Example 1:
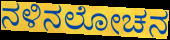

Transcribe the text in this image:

ನಳಿನಲೋಚನ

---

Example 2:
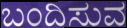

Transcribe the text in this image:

ಬಂದಿಸುವ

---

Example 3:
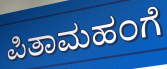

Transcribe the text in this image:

ಪಿತಾಮಹಂಗೆ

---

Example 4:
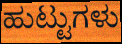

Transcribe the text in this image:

ಹುಟ್ಟುಗಳು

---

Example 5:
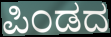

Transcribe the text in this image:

ಪಿಂಡದ